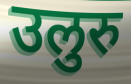
उलुरु